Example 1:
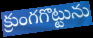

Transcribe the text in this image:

క్రుంగగొట్టును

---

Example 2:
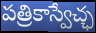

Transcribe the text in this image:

పత్రికాస్వేచ్ఛ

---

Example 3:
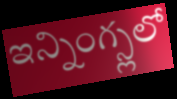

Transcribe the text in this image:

ఇన్నింగ్స్లలో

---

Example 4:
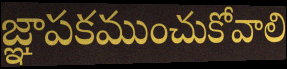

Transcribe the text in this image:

జ్ఞాపకముంచుకోవాలి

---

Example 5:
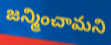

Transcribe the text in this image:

జన్మించామని